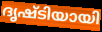
ദൃഷ്ടിയായി